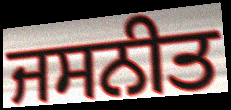
ਜਸਨੀਤ